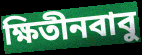
ক্ষিতীনবাবু